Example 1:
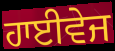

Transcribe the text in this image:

ਹਾਈਵੇਜ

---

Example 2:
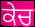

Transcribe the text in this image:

ਕੇਚ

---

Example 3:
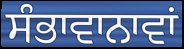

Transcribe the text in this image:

ਸੰਭਾਵਾਨਾਵਾਂ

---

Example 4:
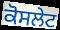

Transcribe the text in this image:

ਕੋਸਲੇਟ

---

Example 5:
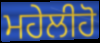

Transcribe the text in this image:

ਮਹੇਲੀਹੋ